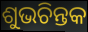
ଶୁଭଚିନ୍ତକ